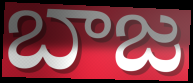
బాజ